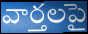
వార్తలపై